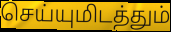
செய்யுமிடத்தும்